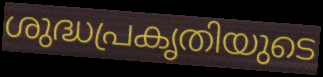
ശുദ്ധപ്രകൃതിയുടെ